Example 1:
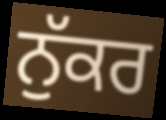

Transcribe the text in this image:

ਨੁੱਕਰ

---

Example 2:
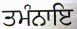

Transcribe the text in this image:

ਤਮੰਨਾਇ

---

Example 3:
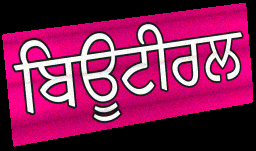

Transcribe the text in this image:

ਬਿਊਟੀਰਲ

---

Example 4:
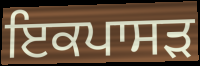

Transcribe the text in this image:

ਇਕਪਾਸੜ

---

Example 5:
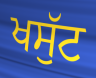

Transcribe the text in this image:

ਖਸੁੱਟ